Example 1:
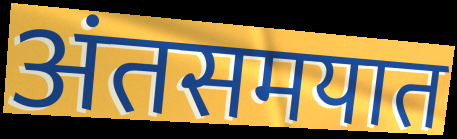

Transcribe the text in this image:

अंतसमयात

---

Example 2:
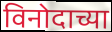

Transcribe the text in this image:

विनोदाच्या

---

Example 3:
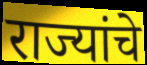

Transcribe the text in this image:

राज्यांचे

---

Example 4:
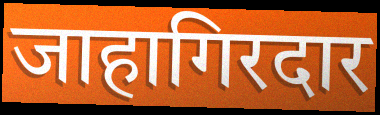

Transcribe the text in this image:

जाहागिरदार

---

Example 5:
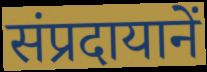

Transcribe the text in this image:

संप्रदायानें